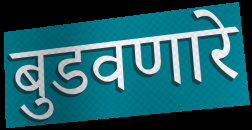
बुडवणारे